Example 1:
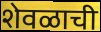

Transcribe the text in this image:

शेवळाची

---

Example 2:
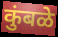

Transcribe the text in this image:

कुंबळे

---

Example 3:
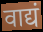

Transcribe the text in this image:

वाद्यं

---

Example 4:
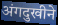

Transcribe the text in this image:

अंगदुखीने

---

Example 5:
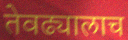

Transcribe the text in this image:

तेवढ्यालाच